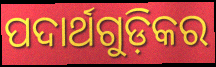
ପଦାର୍ଥଗୁଡ଼ିକର